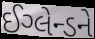
ઈગ્લેન્ડને